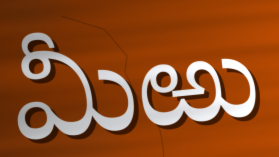
మీఱు